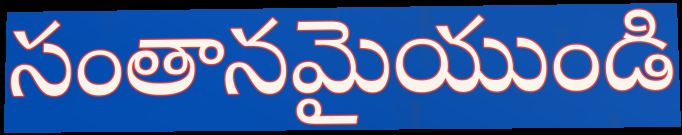
సంతానమైయుండి